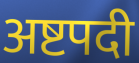
अष्टपदी